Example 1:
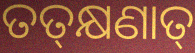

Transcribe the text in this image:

ତତ୍‍କ୍ଷଣାତ୍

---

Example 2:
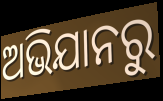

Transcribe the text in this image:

ଅଭିଯାନରୁ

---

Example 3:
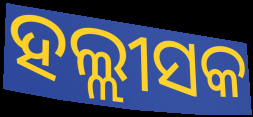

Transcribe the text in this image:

ହଲ୍ଲୀସକ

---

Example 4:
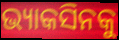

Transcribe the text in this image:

ଭ୍ୟାକସିନକୁ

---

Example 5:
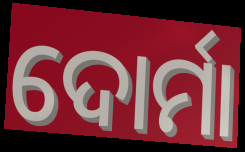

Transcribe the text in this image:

ଦୋର୍ମା